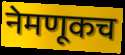
नेमणूकच